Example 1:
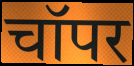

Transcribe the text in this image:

चॉपर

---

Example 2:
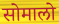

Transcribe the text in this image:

सोमालो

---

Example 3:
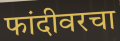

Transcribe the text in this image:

फांदीवरचा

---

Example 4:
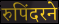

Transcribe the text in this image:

रुपिंदरने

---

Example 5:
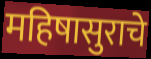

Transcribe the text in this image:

महिषासुराचे